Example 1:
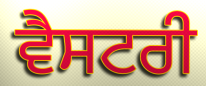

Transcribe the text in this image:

ਵੈਸਟਰੀ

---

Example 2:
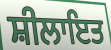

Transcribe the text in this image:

ਸ਼ੀਲਾਇਤ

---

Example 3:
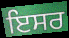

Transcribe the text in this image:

ਇਸਰ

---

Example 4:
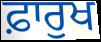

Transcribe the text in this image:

ਫ਼ਾਰੁਖ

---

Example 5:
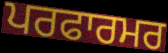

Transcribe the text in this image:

ਪਰਫਾਰਮਰ